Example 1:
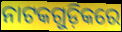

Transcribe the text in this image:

ନାଟକଗୁଡ଼ିକରେ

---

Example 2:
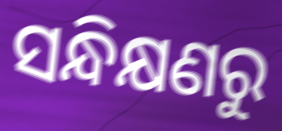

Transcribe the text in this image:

ସନ୍ଧିକ୍ଷଣରୁ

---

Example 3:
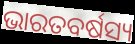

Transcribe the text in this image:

ଭାରତବର୍ଷସ୍ୟ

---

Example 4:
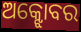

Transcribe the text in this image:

ଅକ୍ଝୋବର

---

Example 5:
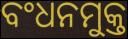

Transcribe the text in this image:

ବଂଧନମୁକ୍ତ